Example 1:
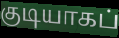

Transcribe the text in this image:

குடியாகப்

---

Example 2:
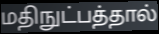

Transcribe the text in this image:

மதிநுட்பத்தால்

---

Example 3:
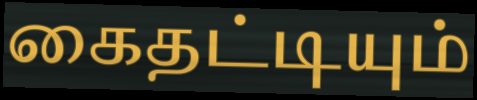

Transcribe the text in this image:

கைதட்டியும்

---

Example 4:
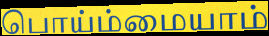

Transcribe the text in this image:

பொய்ம்மையாம்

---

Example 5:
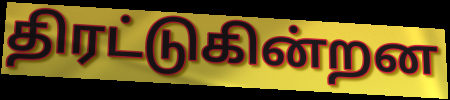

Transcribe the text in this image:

திரட்டுகின்றன